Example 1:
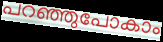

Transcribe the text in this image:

പറഞ്ഞുപോകാം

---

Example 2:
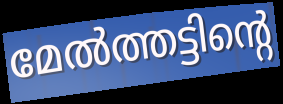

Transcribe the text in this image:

മേൽത്തട്ടിന്റെ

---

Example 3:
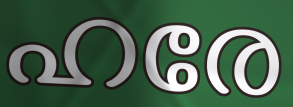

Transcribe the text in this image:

ഹരേ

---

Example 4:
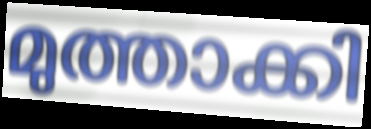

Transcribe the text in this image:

മുത്താക്കി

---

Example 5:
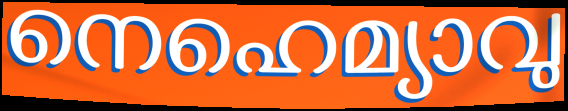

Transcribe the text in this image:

നെഹെമ്യാവു